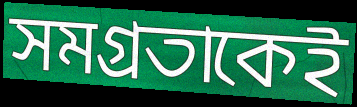
সমগ্রতাকেই